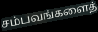
சம்பவங்களைத்